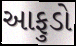
આફુડો